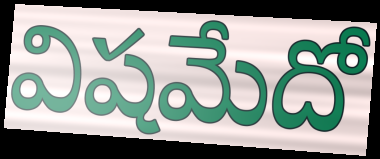
విషమేదో